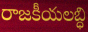
రాజకీయలబ్ధి